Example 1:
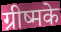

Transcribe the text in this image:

ग्रीष्मके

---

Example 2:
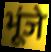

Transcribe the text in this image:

भूंजे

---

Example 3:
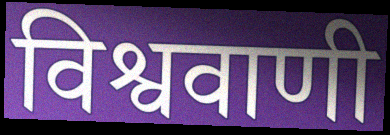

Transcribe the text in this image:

विश्ववाणी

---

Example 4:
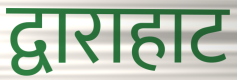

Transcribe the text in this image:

द्वाराहाट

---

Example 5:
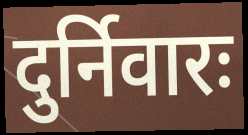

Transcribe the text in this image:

दुर्निवारः